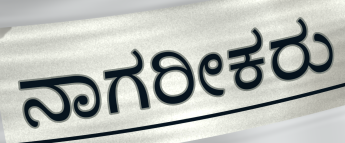
ನಾಗರೀಕರು